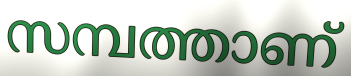
സമ്പത്താണ്